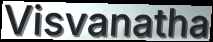
Visvanatha